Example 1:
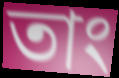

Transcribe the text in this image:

তাং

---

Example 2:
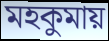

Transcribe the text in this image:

মহকুমায়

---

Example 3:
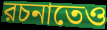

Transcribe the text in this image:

রচনাতেও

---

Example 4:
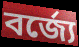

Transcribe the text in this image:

বর্জ্যে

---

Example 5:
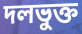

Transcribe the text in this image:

দলভুক্ত